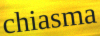
chiasma